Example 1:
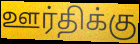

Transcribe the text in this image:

ஊர்திக்கு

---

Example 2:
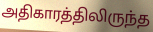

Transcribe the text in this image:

அதிகாரத்திலிருந்த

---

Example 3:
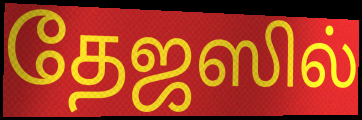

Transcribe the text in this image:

தேஜஸில்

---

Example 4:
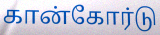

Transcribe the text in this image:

கான்கோர்டு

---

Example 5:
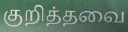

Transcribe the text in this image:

குறித்தவை